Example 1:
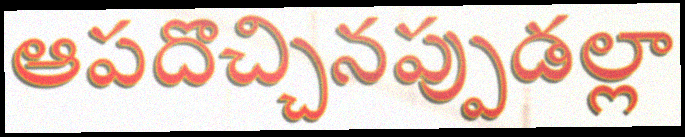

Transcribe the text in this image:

ఆపదొచ్చినప్పుడల్లా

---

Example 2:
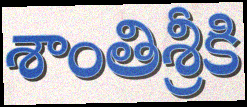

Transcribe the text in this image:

శాంతిశ్రీకి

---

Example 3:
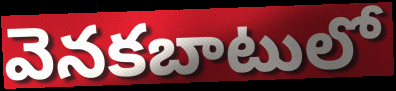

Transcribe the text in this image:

వెనకబాటులో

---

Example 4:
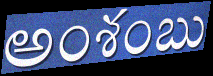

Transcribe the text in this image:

అంశంబు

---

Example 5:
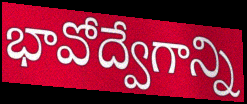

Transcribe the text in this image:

భావోద్వేగాన్ని